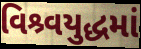
વિશ્ર્વયુદ્ધમાં